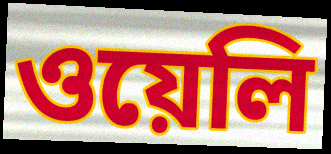
ওয়েলি